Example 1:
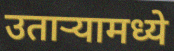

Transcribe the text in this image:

उताऱ्यामध्ये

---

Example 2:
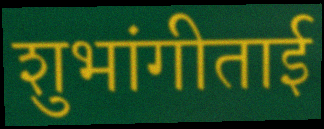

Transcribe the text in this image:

शुभांगीताई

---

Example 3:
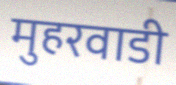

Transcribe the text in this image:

मुहरवाडी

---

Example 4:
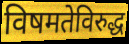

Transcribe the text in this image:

विषमतेविरुद्ध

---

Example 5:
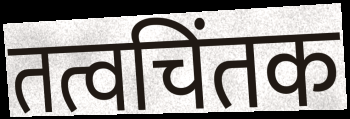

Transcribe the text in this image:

तत्वचिंतक